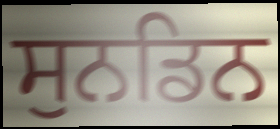
ਸੁਨਡਿਨ